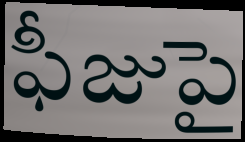
ఫీజుపై